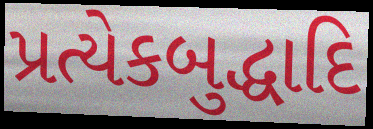
પ્રત્યેકબુદ્ધાદિ